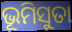
ଭୂମିସୁତା